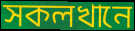
সকলখানে